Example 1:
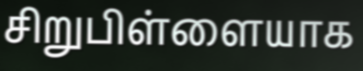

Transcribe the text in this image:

சிறுபிள்ளையாக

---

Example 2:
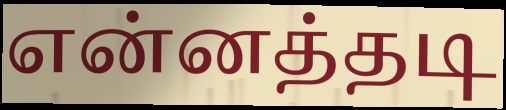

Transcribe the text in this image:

என்னத்தடி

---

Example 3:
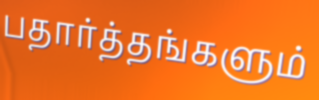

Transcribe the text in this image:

பதார்த்தங்களும்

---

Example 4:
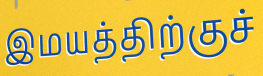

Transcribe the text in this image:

இமயத்திற்குச்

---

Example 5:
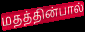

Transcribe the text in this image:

மதத்தின்பால்